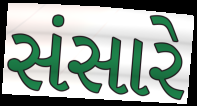
સંસારે